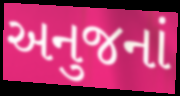
અનુજનાં